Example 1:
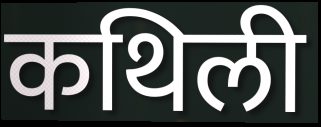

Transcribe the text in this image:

कथिली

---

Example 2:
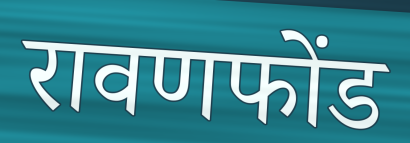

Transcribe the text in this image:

रावणफोंड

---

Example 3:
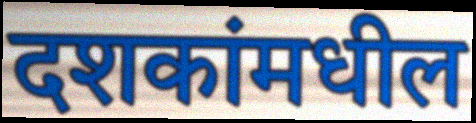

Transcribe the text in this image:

दशकांमधील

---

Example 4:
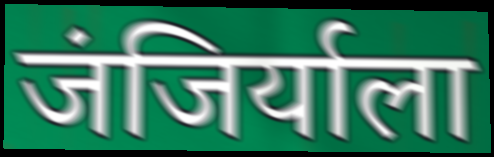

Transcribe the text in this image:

जंजिर्याला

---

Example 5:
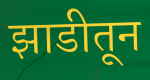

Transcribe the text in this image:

झाडीतून